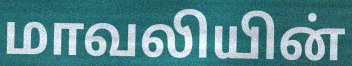
மாவலியின்